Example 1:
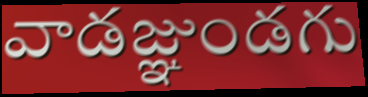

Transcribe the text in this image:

వాడజ్ఞుండగు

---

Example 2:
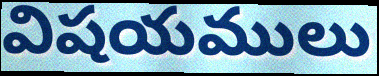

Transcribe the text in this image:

విషయములు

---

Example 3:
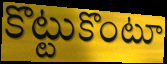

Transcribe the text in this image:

కొట్టుకొంటూ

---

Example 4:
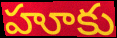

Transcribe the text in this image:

హూకు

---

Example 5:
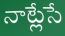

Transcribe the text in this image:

నాట్లేసే